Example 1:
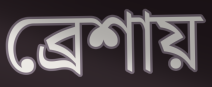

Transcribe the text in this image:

ব্রেশায়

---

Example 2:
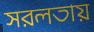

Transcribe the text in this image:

সরলতায়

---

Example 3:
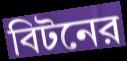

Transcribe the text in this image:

বিটনের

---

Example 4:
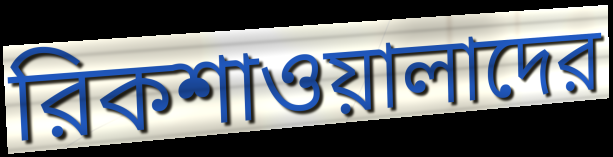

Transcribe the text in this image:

রিকশাওয়ালাদের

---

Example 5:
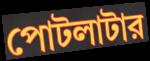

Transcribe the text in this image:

পোটলাটার